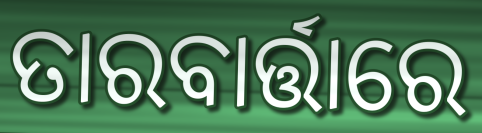
ତାରବାର୍ତ୍ତାରେ